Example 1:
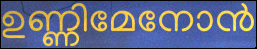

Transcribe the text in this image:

ഉണ്ണിമേനോൻ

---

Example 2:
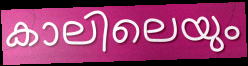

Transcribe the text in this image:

കാലിലെയും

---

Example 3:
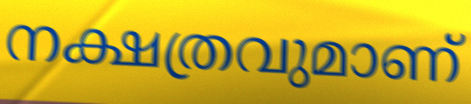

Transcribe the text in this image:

നക്ഷത്രവുമാണ്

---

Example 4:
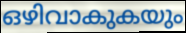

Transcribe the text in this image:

ഒഴിവാകുകയും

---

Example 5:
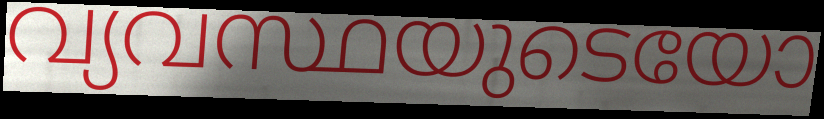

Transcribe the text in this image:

വ്യവസ്ഥയുടെയോ